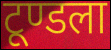
टूण्डला